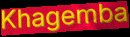
Khagemba